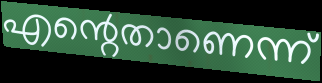
എന്റെതാണെന്ന്